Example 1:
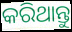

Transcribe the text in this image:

କରିଥାନ୍ତୁ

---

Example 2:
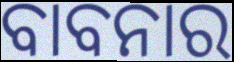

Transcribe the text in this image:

ବାବନାର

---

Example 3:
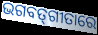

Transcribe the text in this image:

ଭଗବତ୍‌ଗୀତାରେ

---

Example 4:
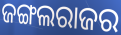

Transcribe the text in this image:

ଜଙ୍ଗଲରାଜର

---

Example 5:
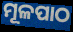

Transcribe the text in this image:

ମୂଳପାଠ